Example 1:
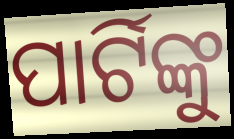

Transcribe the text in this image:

ପାର୍ଟିଙ୍କୁ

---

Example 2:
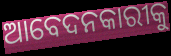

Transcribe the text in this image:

ଆବେଦନକାରୀକୁ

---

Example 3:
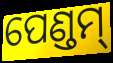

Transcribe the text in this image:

ପେଣ୍ଡମ୍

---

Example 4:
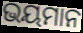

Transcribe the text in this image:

ଭୟମାନ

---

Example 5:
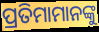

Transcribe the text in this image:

ପ୍ରତିମାମାନଙ୍କୁ